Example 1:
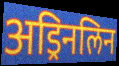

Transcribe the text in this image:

अड्रिनलिन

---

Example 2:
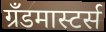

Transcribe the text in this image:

ग्रँडमास्टर्स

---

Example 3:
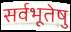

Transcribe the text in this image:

सर्वभूतेषु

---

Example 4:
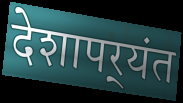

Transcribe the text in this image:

देशापर्यंत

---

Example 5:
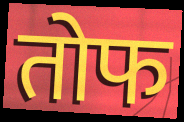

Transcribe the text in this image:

तोफ